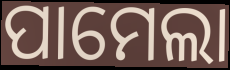
ପାମେଲା